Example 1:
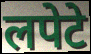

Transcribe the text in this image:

लपेटे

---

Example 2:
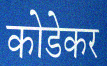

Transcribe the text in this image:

कोडेकर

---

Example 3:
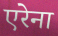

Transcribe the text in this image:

एरेना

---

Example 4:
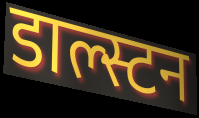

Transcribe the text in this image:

डाल्स्टन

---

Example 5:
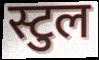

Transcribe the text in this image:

स्टुल